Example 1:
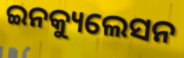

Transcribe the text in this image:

ଇନକ୍ୟୁଲେସନ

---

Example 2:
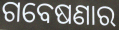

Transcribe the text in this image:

ଗବେଷଣାର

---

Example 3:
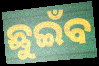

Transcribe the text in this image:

ଛୁଇଁବ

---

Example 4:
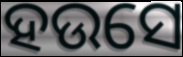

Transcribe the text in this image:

ହଉସେ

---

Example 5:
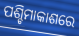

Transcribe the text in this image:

ପଶ୍ଚିମାକାଶରେ